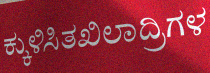
ಕ್ಕುಳಿಸಿತಖಿಲಾದ್ರಿಗಳ